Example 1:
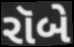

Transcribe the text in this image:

રૉબે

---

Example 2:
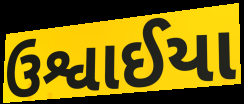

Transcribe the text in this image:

ઉશ્વાઈયા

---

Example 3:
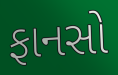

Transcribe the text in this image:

ફાનસો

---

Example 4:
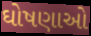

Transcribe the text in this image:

ઘોષણાઓ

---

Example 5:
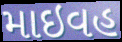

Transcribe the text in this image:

માઇવહ